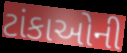
ટાંકાઓની